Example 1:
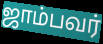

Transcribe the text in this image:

ஜாம்பவர்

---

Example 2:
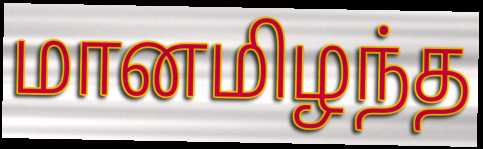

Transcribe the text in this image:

மானமிழந்த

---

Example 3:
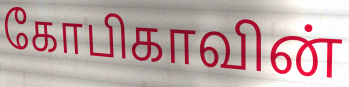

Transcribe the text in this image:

கோபிகாவின்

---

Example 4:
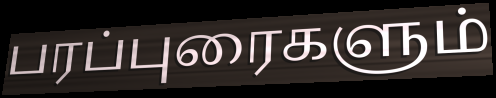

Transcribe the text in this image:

பரப்புரைகளும்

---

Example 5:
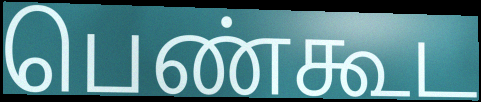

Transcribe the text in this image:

பெண்கூட